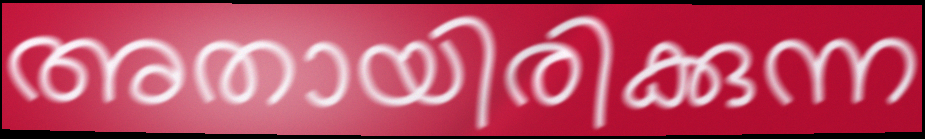
അതായിരിക്കുന്ന